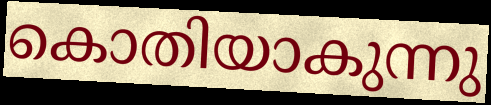
കൊതിയാകുന്നു